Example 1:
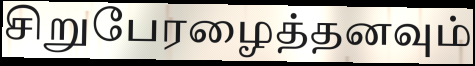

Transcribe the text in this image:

சிறுபேரழைத்தனவும்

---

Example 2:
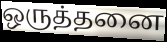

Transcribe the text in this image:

ஒருத்தனை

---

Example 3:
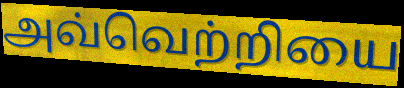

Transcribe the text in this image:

அவ்வெற்றியை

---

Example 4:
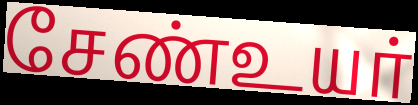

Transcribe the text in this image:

சேண்உயர்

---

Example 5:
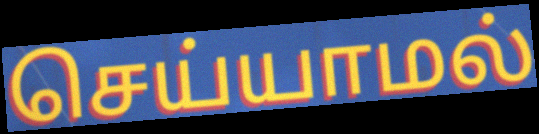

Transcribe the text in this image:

செய்யாமல்